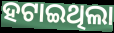
ହଟାଇଥିଲା